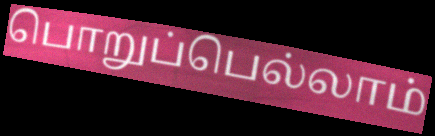
பொறுப்பெல்லாம்